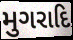
મુગરાદિ